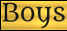
Boys